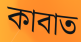
কাবাত